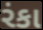
રંકા